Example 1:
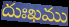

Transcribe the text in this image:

దుఃఖము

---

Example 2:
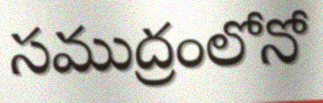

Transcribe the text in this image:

సముద్రంలోనో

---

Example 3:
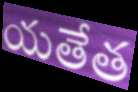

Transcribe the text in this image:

యతేత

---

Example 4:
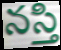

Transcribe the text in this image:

నస్తి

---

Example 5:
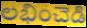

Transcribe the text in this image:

లభించెడి